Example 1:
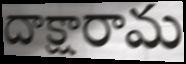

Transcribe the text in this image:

దాక్షారామ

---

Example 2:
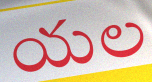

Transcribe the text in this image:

యల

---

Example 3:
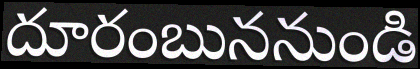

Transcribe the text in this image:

దూరంబుననుండి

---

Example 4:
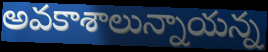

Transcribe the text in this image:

అవకాశాలున్నాయన్న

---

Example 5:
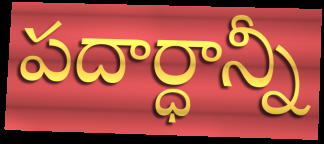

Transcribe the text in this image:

పదార్ధాన్నీ